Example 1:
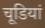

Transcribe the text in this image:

चूडियां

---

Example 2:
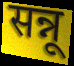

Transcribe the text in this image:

सन्नू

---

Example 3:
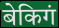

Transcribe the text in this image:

बेकिगं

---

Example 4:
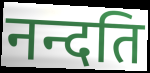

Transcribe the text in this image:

नन्दति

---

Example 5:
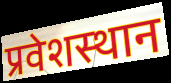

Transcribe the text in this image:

प्रवेशस्थान